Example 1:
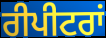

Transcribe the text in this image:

ਰੀਪੀਟਰਾਂ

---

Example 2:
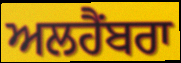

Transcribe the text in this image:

ਅਲਹੈਂਬਰਾ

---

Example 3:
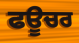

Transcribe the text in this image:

ਫਊਚਰ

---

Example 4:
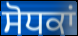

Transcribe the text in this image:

ਸੋਧਕਾਂ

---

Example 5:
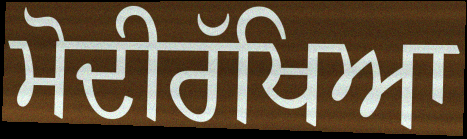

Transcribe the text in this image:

ਮੋਦੀਰੱਖਿਆ